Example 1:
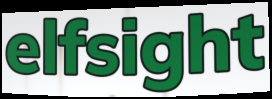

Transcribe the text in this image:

elfsight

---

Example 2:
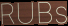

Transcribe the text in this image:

RUBs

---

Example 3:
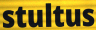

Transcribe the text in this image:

stultus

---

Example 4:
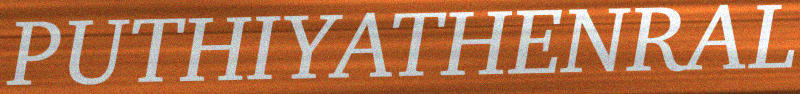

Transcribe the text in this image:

PUTHIYATHENRAL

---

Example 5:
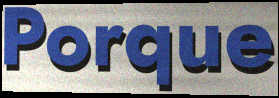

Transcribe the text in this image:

Porque